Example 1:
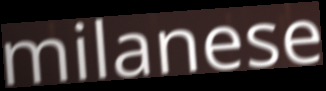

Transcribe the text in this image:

milanese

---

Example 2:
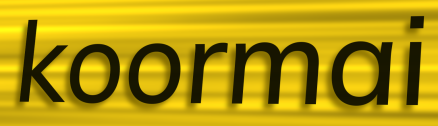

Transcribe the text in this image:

koormai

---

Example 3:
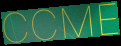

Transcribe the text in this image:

CCME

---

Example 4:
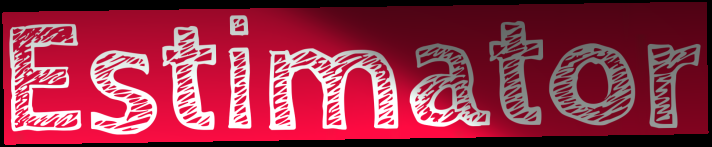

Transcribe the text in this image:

Estimator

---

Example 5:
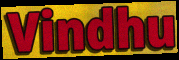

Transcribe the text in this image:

Vindhu